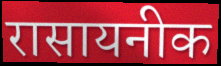
रासायनीक